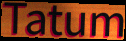
Tatum